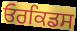
ਓਰਕਿਡਸ